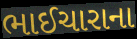
ભાઈચારાના